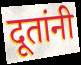
दूतांनी